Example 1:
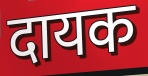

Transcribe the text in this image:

दायक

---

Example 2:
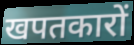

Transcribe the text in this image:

खपतकारों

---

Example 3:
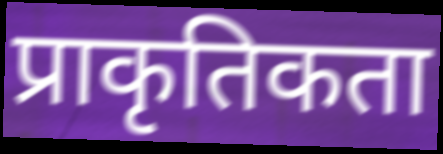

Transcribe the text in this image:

प्राकृतिकता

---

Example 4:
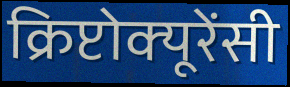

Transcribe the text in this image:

क्रिप्टोक्यूरेंसी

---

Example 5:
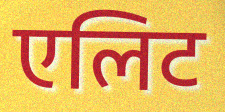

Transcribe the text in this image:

एलिट